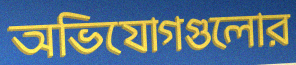
অভিযোগগুলোর